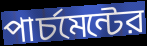
পার্চমেন্টের